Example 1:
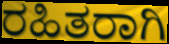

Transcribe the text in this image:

ರಹಿತರಾಗಿ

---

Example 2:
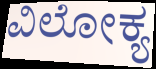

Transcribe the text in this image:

ವಿಲೋಕ್ಯ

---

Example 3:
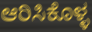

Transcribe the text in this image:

ಆರಿಸಿಕೊಳ್ಳ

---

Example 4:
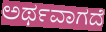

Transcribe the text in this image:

ಅರ್ಥವಾಗದೆ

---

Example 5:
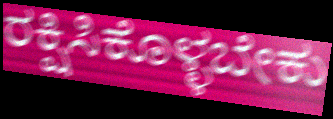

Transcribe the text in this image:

ರಕ್ಷಿಸಿಕೊಳ್ಳಬೇಕು